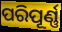
ପରିପୂର୍ଣ୍ଣ